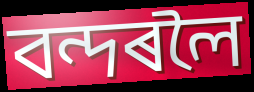
বন্দৰলৈ